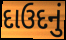
દાઉદનું